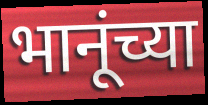
भानूंच्या